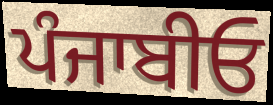
ਪੰਜਾਬੀਓ